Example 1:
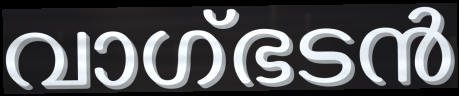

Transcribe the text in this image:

വാഗ്ഭടൻ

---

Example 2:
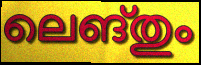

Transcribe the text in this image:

ലെങ്തും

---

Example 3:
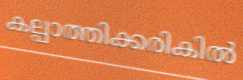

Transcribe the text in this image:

കല്പാത്തിക്കരികിൽ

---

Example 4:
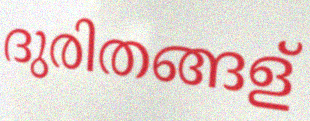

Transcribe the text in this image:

ദുരിതങ്ങള്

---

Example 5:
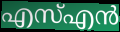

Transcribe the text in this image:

എസ്എൻ